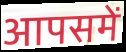
आपसमें